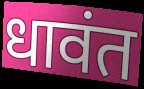
धावंत